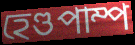
হেণ্ডপাম্প